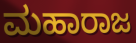
ಮಹಾರಾಜ